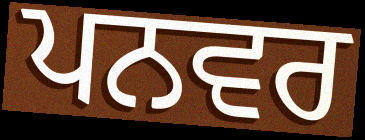
ਪਨਵਰ